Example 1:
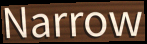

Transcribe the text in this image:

Narrow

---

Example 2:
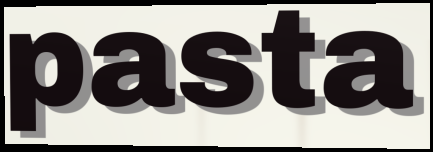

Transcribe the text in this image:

pasta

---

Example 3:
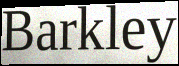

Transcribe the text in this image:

Barkley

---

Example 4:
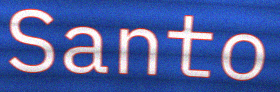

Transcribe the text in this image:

Santo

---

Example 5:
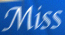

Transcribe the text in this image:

Miss